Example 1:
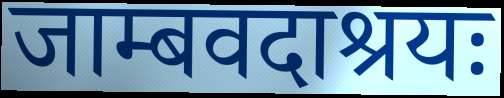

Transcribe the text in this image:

जाम्बवदाश्रयः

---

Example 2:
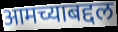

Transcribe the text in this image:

आमच्याबद्दल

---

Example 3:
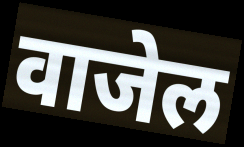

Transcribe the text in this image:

वाजेल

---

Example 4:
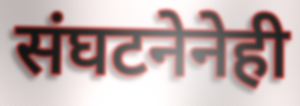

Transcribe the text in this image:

संघटनेनेही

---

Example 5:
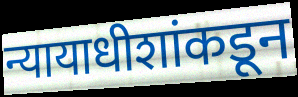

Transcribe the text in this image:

न्यायाधीशांकडून